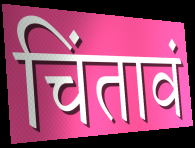
चिंतावं